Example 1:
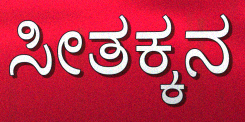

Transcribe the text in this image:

ಸೀತಕ್ಕನ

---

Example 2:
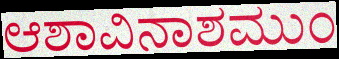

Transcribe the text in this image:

ಆಶಾವಿನಾಶಮುಂ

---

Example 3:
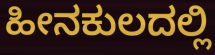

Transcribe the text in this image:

ಹೀನಕುಲದಲ್ಲಿ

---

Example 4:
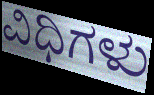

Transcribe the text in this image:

ವಿಧಿಗಳು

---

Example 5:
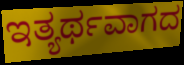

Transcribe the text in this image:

ಇತ್ಯರ್ಥವಾಗದ